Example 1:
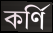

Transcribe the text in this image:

কর্ণি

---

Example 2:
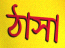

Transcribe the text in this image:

ঠাসা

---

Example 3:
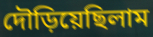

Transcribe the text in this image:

দৌড়িয়েছিলাম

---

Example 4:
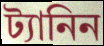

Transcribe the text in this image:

ট্যানিন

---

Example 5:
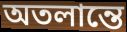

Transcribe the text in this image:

অতলান্তে